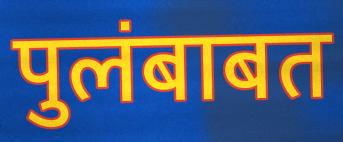
पुलंबाबत